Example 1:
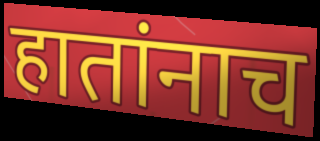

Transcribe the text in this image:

हातांनाच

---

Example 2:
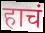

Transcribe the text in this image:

हाचं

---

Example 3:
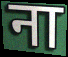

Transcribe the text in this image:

ना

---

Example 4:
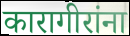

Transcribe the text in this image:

कारागीरांना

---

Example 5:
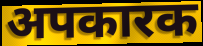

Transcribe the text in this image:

अपकारक